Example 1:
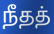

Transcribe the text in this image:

நீதத்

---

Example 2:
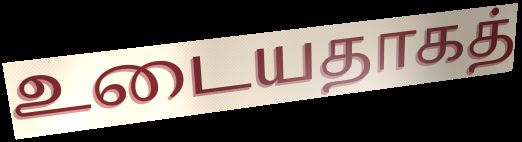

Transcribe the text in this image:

உடையதாகத்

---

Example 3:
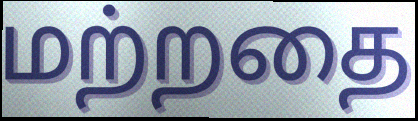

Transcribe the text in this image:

மற்றதை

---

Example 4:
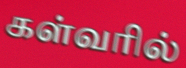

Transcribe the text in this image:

கள்வரில்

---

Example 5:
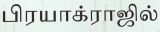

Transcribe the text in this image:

பிரயாக்ராஜில்